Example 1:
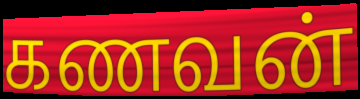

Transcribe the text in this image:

கணவன்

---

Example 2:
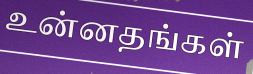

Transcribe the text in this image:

உன்னதங்கள்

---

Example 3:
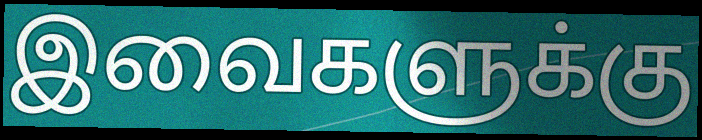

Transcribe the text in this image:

இவைகளுக்கு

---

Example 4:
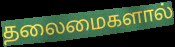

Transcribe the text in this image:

தலைமைகளால்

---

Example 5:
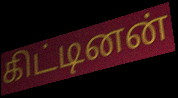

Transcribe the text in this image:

கிட்டினன்